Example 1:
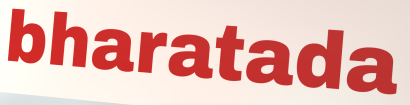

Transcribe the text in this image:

bharatada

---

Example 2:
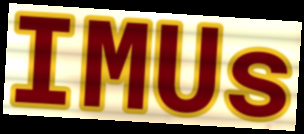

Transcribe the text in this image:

IMUs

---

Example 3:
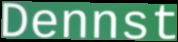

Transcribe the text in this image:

Dennst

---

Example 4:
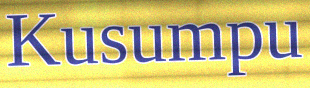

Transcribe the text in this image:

Kusumpu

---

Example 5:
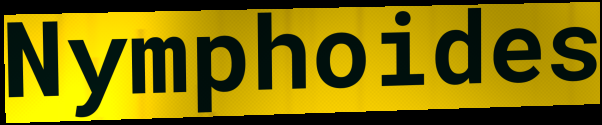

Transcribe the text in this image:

Nymphoides